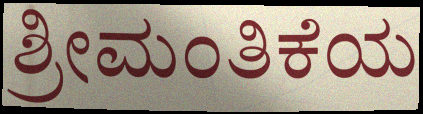
ಶ್ರೀಮಂತಿಕೆಯ